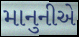
માનુનીએ